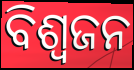
ବିଶ୍ଵଜନ